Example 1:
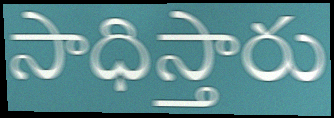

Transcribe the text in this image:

సాధిస్తారు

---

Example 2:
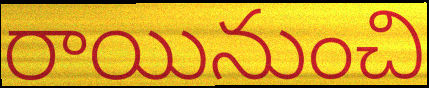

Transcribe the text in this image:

రాయినుంచి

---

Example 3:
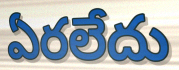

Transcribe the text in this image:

ఏరలేదు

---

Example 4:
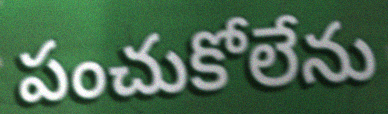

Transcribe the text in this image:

పంచుకోలేను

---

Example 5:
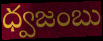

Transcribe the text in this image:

ధ్వజంబు